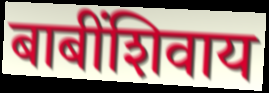
बाबींशिवाय